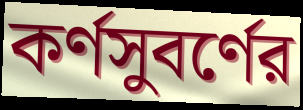
কর্ণসুবর্ণের